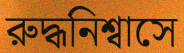
রুদ্ধনিশ্বাসে